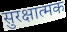
सुरक्षात्मक